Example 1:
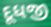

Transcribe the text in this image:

દૂધજી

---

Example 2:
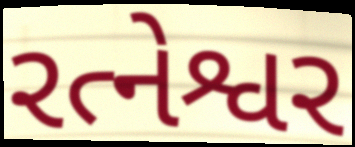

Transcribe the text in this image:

રત્નેશ્વર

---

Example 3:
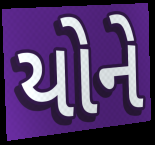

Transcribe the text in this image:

યોને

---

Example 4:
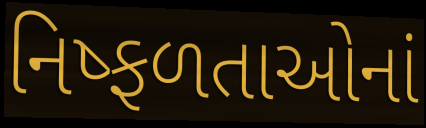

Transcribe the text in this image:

નિષ્ફળતાઓનાં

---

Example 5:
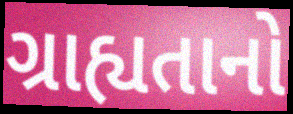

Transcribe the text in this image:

ગ્રાહ્યતાનો